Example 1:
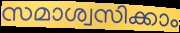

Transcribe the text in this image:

സമാശ്വസിക്കാം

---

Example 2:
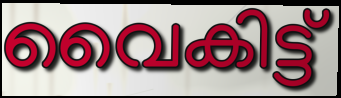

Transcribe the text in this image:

വൈകിട്ട്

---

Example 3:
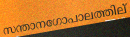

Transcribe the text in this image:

സന്താനഗോപാലത്തില്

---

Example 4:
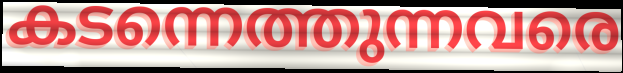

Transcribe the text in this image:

കടന്നെത്തുന്നവരെ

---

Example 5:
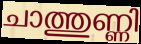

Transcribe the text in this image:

ചാത്തുണ്ണി